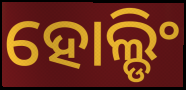
ହୋଲ୍ଡିଂ